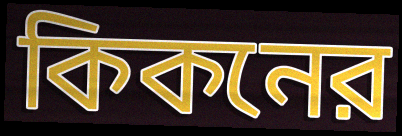
কিকনের